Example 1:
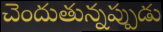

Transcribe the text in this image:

చెందుతున్నప్పుడు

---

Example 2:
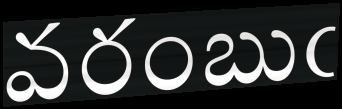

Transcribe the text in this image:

వరంబుఁ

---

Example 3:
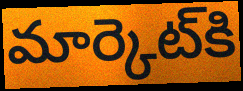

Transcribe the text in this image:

మార్కెట్‌కి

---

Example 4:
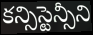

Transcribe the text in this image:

కన్సిస్టెన్సీని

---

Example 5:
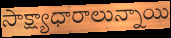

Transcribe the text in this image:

సాక్ష్యాధారాలున్నాయి